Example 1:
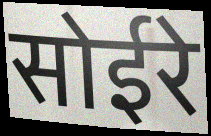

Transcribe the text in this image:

सोईरे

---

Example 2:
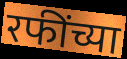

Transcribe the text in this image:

रफींच्या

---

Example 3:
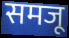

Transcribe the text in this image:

समजू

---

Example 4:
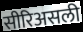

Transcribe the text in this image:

सीरिअसली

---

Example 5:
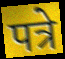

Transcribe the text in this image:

पत्रे